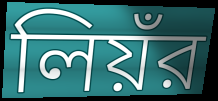
লিয়ঁর